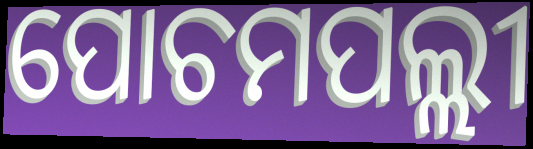
ପୋଚମପଲ୍ଲୀ